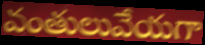
వంతులువేయగా